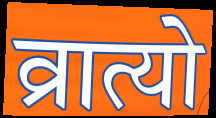
व्रात्यो